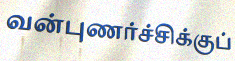
வன்புணர்ச்சிக்குப்